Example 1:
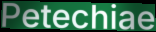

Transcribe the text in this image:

Petechiae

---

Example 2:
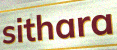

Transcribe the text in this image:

sithara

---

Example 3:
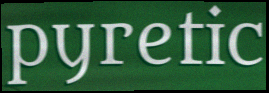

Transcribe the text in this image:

pyretic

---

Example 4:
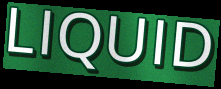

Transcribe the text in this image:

LIQUID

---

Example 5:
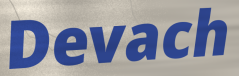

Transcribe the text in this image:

Devach